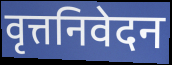
वृत्तनिवेदन